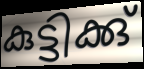
കുട്ടിക്കു്